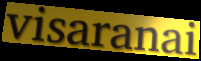
visaranai